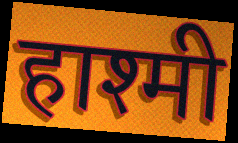
हाश्मी